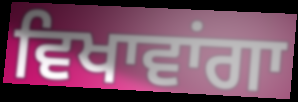
ਵਿਖਾਵਾਂਗਾ